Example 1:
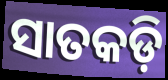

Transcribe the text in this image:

ସାତକଡ଼ି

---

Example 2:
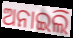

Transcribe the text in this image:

ଅନାଇଲି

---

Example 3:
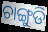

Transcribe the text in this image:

ଚାଙ୍ଗୁଡି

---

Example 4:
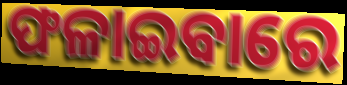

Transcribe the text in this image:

ଫଳାଇବାରେ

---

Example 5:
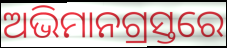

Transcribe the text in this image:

ଅଭିମାନଗ୍ରସ୍ତରେ